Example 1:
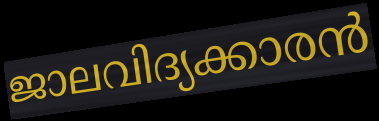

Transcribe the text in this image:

ജാലവിദ്യക്കാരൻ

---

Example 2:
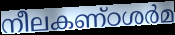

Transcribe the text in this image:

നീലകണ്ഠശർമ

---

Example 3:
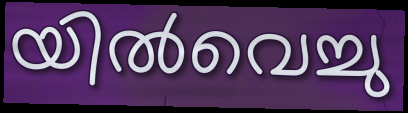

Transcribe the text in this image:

യിൽവെച്ചു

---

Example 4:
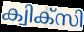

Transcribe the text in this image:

ക്വിക്സി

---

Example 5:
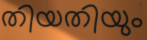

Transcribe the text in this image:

തിയതിയും